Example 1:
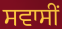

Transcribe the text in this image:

ਸਵਾਸੀਂ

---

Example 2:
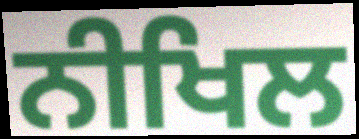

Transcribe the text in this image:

ਨੀਖਿਲ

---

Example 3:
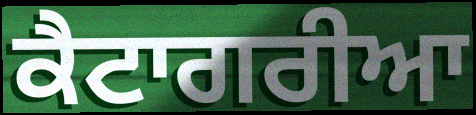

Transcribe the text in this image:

ਕੈਟਾਗਰੀਆ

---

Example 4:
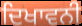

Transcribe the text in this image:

ਦਿਖਾਵਨੀ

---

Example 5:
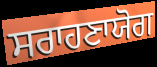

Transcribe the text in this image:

ਸਰਾਹਣਾਯੋਗ